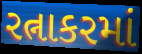
રત્નાકરમાં